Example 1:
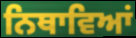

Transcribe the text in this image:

ਨਿਥਾਵਿਆਂ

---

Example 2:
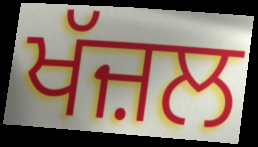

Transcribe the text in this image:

ਖੱਜ਼ਲ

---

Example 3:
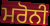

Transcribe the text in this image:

ਮਰੋਨੀ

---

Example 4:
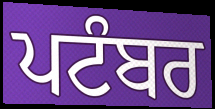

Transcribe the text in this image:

ਪਟੰਬਰ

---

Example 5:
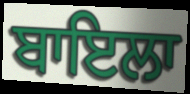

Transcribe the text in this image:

ਬਾਇਲਾ